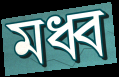
মধ্ব